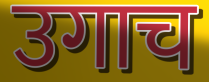
उगाच